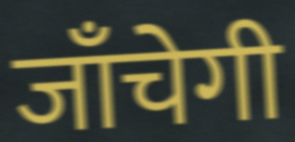
जाँचेगी